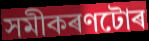
সমীকৰণটোৰ